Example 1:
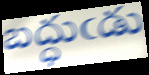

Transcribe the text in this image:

బద్ధుఁడు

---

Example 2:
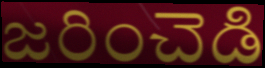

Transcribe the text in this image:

జరించెడి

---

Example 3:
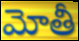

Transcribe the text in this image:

మోతీ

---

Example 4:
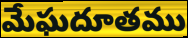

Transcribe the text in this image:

మేఘదూతము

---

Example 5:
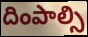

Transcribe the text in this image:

దింపాల్సి